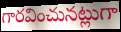
గారవించునట్లుగా